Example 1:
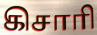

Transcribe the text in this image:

கிசாரி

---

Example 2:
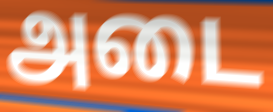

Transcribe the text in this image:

அடை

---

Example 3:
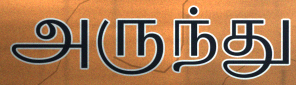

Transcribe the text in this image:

அருந்து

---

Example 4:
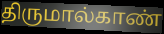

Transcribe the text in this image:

திருமால்காண்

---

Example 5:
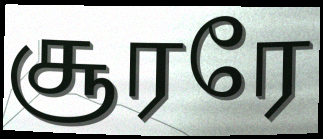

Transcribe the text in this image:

சூரரே